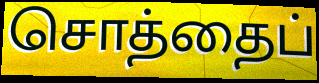
சொத்தைப்